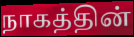
நாகத்தின்